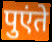
पुएंते